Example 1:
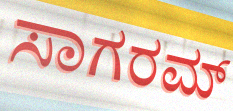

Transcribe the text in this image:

ಸಾಗರಮ್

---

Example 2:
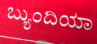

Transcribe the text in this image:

ಬ್ಯುಂದಿಯಾ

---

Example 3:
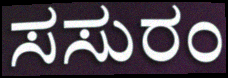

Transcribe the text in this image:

ಸಸುರಂ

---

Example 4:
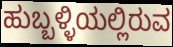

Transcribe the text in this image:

ಹುಬ್ಬಳ್ಳಿಯಲ್ಲಿರುವ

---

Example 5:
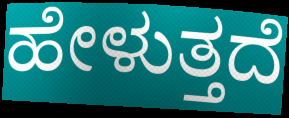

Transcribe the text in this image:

ಹೇಳುತ್ತದೆ